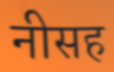
नीसह